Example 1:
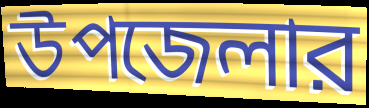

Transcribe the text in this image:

উপজেলার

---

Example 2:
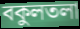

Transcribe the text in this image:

বকুলতলা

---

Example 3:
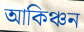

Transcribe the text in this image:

আকিঞ্চন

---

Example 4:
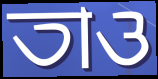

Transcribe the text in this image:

তাও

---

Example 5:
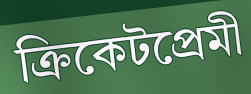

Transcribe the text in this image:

ক্রিকেটপ্রেমী